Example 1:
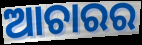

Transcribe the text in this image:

ଆଚାରର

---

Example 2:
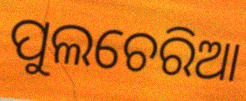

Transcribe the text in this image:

ପୁଲଚେରିଆ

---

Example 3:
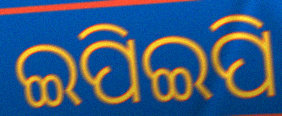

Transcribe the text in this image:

ଇପିଇପି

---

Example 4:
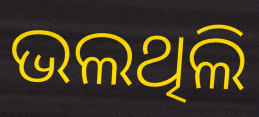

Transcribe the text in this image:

ଭଲଥିଲି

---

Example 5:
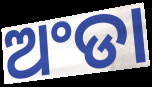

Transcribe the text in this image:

ଅଂଡା